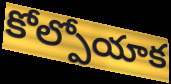
కోల్పోయాక